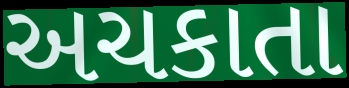
અચકાતા